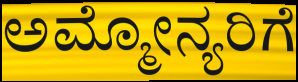
ಅಮ್ಮೋನ್ಯರಿಗೆ